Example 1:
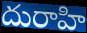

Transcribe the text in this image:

దురాహి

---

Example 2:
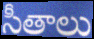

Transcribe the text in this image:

సీతాలు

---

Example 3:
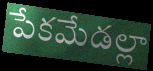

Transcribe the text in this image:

పేకమేడల్లా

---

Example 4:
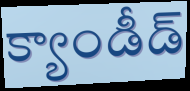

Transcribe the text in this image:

క్యాండీడ్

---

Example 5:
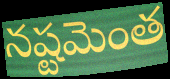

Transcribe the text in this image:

నష్టమెంత